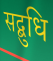
सद्बुधि